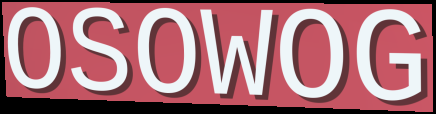
OSOWOG